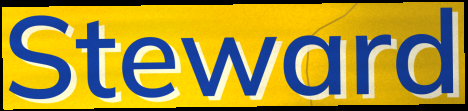
Steward